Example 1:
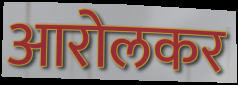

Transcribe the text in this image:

आरोलकर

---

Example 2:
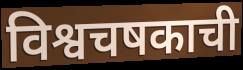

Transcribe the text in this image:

विश्वचषकाची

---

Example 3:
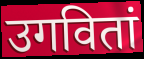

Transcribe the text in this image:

उगवितां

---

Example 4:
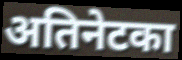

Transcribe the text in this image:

अतिनेटका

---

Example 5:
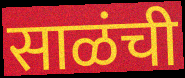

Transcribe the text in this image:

साळंची